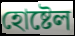
হোষ্টেল